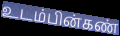
உடம்பின்கண்